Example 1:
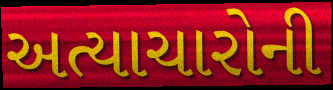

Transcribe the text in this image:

અત્યાચારોની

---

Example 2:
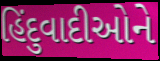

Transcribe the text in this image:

હિંદુવાદીઓને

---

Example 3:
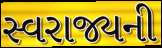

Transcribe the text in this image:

સ્વરાજ્યની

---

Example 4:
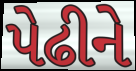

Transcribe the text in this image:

પેઢીને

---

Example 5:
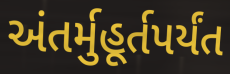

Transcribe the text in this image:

અંતર્મુહૂર્તપર્યંત